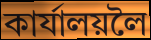
কাৰ্যালয়লৈ